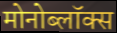
मोनोब्लॉक्स